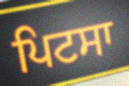
ਪਿਟਸਾ